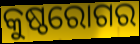
କୁଷ୍ଠରୋଗର